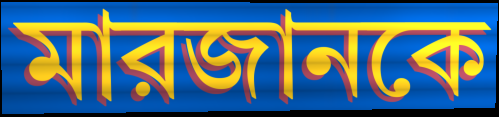
মারজানকে